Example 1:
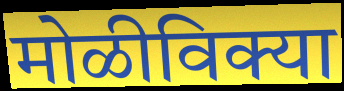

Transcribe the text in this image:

मोळीविक्या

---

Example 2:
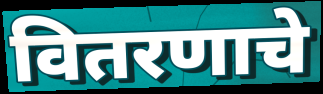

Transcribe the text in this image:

वितरणाचे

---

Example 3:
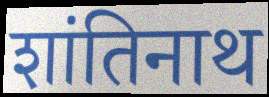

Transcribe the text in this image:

शांतिनाथ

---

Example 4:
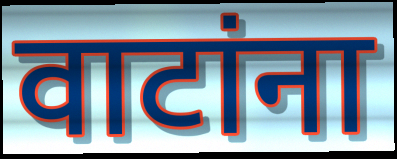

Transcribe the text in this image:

वाटांना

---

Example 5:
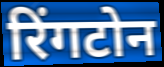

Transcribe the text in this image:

रिंगटोन